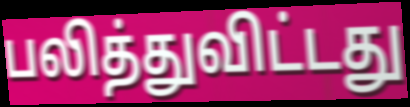
பலித்துவிட்டது